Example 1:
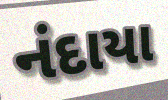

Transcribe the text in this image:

નંદાયા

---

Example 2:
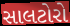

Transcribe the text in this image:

સાલટોરો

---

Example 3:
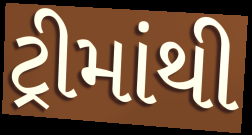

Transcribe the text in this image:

ટ્રીમાંથી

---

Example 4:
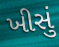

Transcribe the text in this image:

ખીસું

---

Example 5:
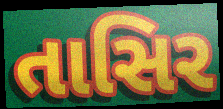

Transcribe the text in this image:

તાસિર